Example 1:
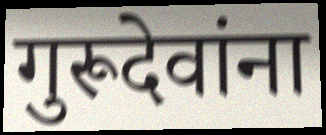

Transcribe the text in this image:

गुरूदेवांना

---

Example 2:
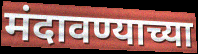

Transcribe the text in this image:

मंदावण्याच्या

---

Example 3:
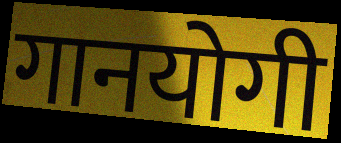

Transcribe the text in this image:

गानयोगी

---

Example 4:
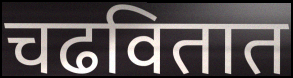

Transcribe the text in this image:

चढवितात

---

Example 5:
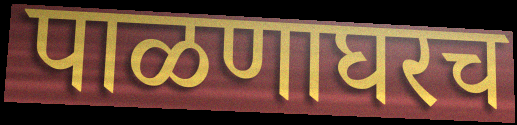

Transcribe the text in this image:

पाळणाघरच